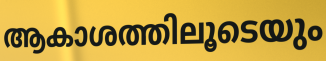
ആകാശത്തിലൂടെയും